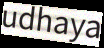
udhaya